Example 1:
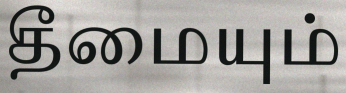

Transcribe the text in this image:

தீமையும்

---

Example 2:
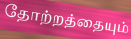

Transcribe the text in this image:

தோற்றத்தையும்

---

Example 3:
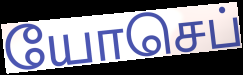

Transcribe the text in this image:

யோசெப்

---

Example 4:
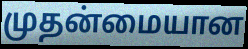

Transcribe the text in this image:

முதன்மையான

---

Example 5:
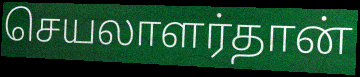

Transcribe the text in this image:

செயலாளர்தான்